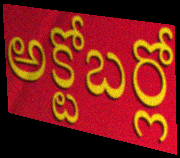
అక్టోబర్లో